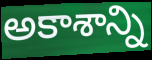
అకాశాన్ని